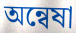
অন্বেষা